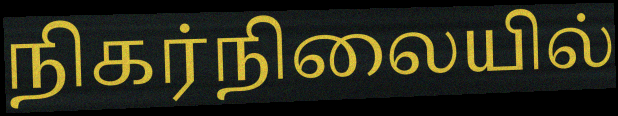
நிகர்நிலையில்